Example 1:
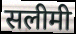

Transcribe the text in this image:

सलीमी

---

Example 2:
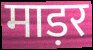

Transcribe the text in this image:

माड़र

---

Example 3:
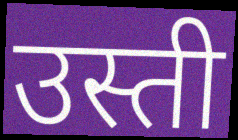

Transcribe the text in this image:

उस्ती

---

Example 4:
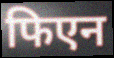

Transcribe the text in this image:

फिएन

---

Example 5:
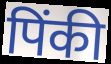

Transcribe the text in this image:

पिंकी